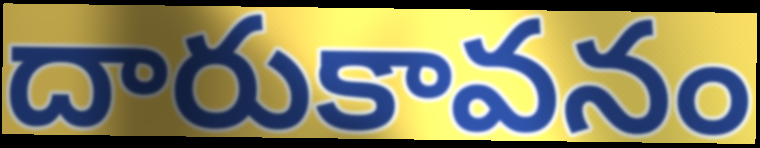
దారుకావనం